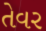
તેવર